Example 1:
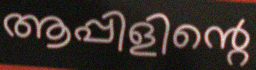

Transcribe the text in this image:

ആപ്പിളിന്റെ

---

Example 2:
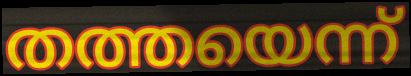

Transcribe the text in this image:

തത്തയെന്ന്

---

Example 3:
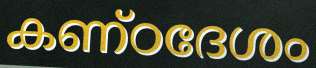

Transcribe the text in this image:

കണ്ഠദേശം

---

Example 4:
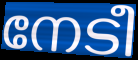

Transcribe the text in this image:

നേടീ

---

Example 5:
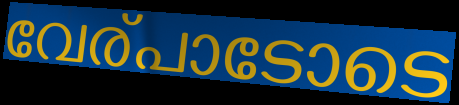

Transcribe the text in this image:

വേര്പാടോടെ